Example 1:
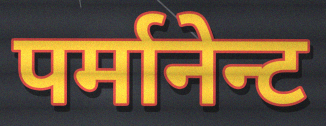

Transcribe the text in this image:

पर्मानेन्ट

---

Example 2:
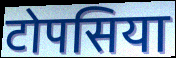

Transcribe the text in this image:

टोपसिया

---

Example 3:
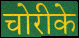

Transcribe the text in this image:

चोरीके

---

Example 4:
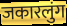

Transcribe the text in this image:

जकारलुंग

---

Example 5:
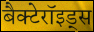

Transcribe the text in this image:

बैक्टेरॉइड्स